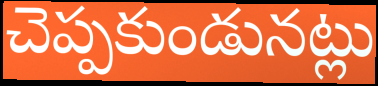
చెప్పకుండునట్లు